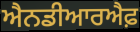
ਐਨਡੀਆਰਐਫ਼